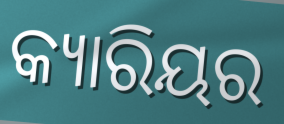
କ୍ୟାରିୟର